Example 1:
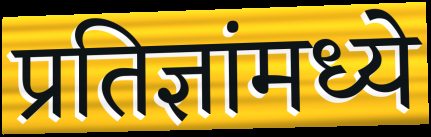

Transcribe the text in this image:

प्रतिज्ञांमध्ये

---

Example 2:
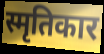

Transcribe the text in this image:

स्मृतिकार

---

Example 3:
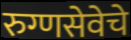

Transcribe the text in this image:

रुग्णसेवेचे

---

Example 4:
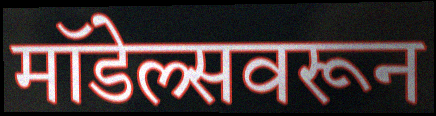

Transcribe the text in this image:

मॉडेल्सवरून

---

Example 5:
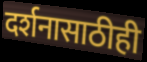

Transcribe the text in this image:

दर्शनासाठीही